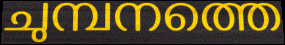
ചുമ്പനത്തെ